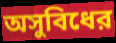
অসুবিধের